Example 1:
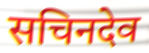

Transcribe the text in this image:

सचिनदेव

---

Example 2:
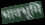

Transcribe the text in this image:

भावभूमि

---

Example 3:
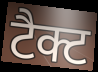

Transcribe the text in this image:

टैक्ट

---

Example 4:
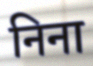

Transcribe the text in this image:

निना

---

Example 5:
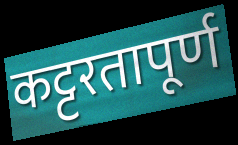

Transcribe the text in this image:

कट्टरतापूर्ण